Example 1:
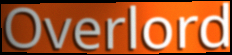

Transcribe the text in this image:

Overlord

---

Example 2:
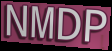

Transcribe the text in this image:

NMDP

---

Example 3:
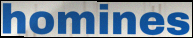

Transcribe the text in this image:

homines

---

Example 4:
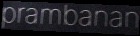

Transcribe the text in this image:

prambanan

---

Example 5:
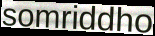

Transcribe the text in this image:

somriddho